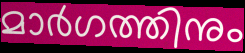
മാർഗത്തിനും